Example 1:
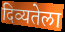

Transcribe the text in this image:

दिव्यतेला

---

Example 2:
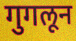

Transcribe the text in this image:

गुगलून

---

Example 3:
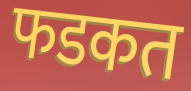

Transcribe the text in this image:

फडकत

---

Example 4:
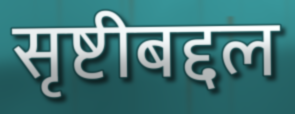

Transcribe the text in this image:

सृष्टीबद्दल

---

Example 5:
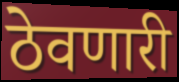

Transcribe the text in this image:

ठेवणारी